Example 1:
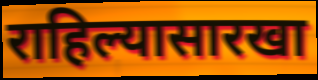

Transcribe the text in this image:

राहिल्यासारखा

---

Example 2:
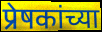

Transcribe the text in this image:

प्रेषकांच्या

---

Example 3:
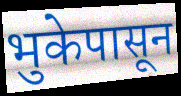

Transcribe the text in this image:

भुकेपासून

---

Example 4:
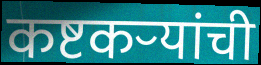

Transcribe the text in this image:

कष्टकऱ्यांची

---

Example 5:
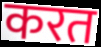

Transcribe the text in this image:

करत